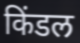
किंडल